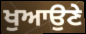
ਖੁਆਉਣੇ